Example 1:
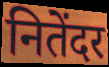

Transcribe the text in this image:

नितेंदर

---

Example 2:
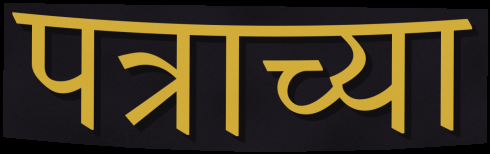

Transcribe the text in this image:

पत्राच्या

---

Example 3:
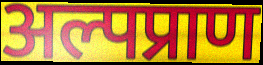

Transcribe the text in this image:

अल्पप्राण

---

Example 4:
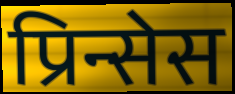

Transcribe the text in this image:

प्रिन्सेस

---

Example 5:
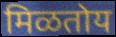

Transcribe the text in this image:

मिळतोय